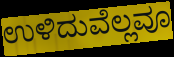
ಉಳಿದುವೆಲ್ಲವೂ